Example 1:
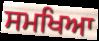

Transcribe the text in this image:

ਸਮਖਿਆ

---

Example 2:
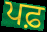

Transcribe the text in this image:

ਪਫ਼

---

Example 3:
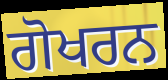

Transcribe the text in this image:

ਗੋਖਰਨ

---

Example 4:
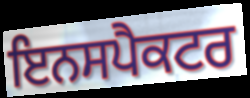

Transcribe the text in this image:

ਇਨਸਪੈਕਟਰ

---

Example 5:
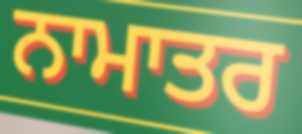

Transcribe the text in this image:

ਨਾਮਾਤਰ